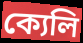
ক্যেলি